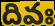
దివః